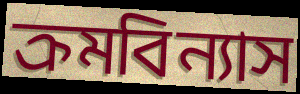
ক্ৰমবিন্যাস